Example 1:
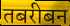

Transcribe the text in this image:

तबरीबन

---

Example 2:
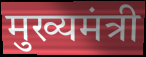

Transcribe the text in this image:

मुख्‍यमंत्री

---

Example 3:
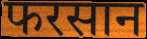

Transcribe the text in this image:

फरसान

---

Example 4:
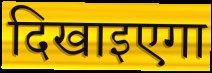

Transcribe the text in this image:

दिखाइएगा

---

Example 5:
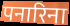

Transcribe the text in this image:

पनारिना